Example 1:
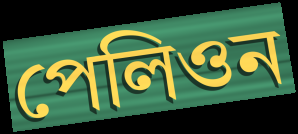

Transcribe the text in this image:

পেলিওন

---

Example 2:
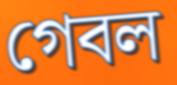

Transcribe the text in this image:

গেবল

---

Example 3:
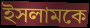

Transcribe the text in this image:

ইসলামকে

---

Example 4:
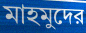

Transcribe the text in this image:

মাহমুদের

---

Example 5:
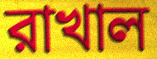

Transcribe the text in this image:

রাখাল